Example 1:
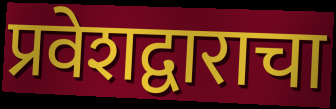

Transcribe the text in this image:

प्रवेशद्वाराचा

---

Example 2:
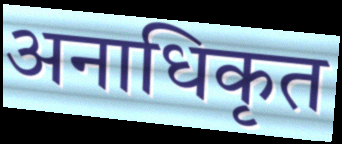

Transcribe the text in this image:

अनाधिकृत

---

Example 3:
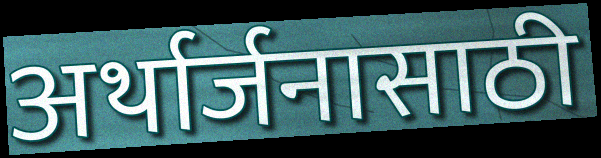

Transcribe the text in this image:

अर्थार्जनासाठी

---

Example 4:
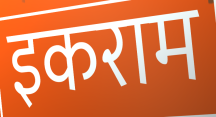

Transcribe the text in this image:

इकराम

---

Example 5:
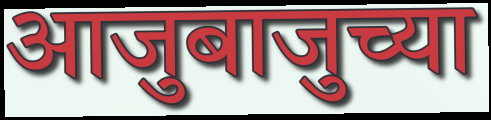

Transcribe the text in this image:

आजुबाजुच्या